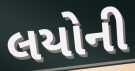
લયોની